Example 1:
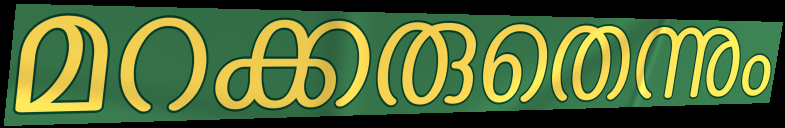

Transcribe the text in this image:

മറക്കരുതെന്നും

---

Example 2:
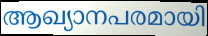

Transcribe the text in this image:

ആഖ്യാനപരമായി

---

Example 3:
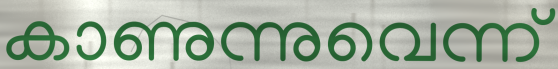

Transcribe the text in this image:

കാണുന്നുവെന്ന്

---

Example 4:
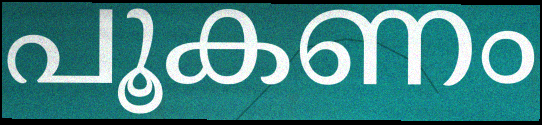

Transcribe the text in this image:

പൂകണം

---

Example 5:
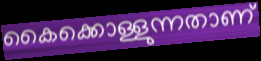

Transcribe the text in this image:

കൈക്കൊള്ളുന്നതാണ്